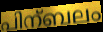
പിന്ബലം